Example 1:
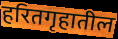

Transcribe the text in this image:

हरितगृहातील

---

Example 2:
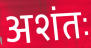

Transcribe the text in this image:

अशंतः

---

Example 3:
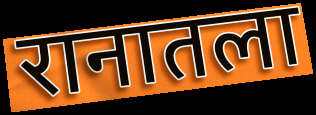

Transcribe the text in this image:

रानातला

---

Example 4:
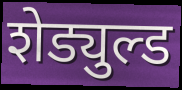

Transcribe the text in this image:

शेड्युल्ड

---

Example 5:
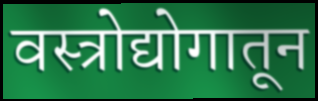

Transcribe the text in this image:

वस्त्रोद्योगातून